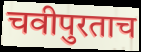
चवीपुरताच